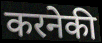
करनेकी